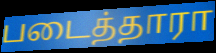
படைத்தாரா